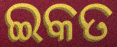
ଇକତ